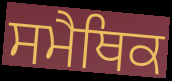
ਸਮੈਥਿਕ